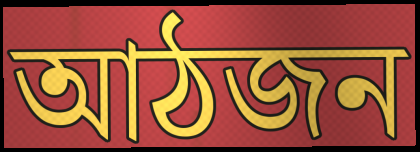
আঠজন